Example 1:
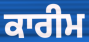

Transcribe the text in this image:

ਕਾਰੀਮ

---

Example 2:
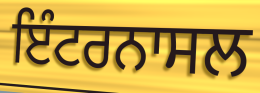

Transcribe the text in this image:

ਇੰਟਰਨਾਸਲ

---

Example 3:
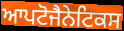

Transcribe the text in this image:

ਆਪਟੋਜੈਨੇਟਿਕਸ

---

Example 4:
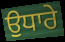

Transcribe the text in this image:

ਉਧਾਰੇ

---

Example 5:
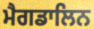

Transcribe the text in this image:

ਮੈਗਡਾਲਿਨ